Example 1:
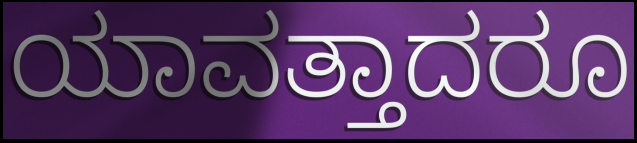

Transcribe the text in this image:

ಯಾವತ್ತಾದರೂ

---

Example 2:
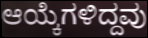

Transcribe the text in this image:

ಆಯ್ಕೆಗಳಿದ್ದವು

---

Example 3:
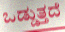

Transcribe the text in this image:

ಒಡ್ಡುತ್ತದೆ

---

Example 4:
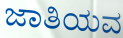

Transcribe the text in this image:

ಜಾತಿಯವ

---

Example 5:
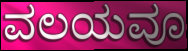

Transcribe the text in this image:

ವಲಯವೂ